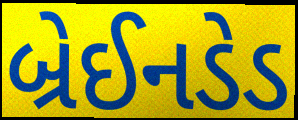
બ્રેઈનડેડ